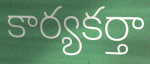
కార్యకర్తా